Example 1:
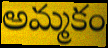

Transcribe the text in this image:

అమ్మకం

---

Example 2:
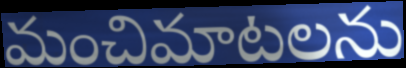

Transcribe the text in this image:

మంచిమాటలను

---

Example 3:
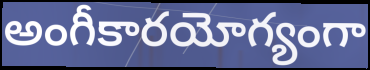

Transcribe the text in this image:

అంగీకారయోగ్యంగా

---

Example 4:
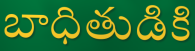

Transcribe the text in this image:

బాధితుడికి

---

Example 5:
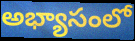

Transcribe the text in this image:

అభ్యాసంలో